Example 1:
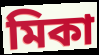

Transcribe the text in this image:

মিকা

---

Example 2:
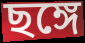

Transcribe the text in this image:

ছঙ্গে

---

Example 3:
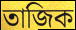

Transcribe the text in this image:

তাজিক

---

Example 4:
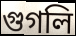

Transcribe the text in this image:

গুগলি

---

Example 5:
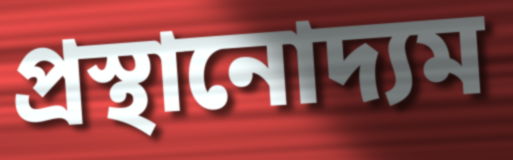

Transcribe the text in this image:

প্রস্থানোদ্যম